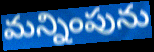
మన్నింపును